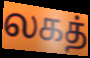
லகத்